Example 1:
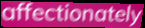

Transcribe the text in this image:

affectionately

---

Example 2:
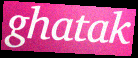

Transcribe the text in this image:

ghatak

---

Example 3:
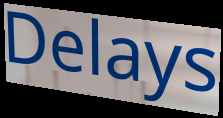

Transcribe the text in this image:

Delays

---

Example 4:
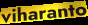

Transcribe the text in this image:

viharanto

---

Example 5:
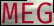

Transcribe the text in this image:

MEG